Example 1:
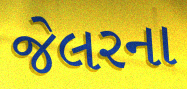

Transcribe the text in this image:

જેલરના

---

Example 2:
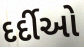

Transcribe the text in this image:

દર્દીઓ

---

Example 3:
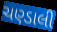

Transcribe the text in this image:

ચણ્ડાલી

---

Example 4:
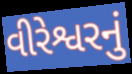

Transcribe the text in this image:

વીરેશ્વરનું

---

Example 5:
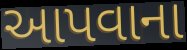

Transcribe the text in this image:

આપવાના